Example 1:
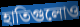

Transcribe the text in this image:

হাতিগুলোও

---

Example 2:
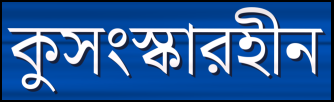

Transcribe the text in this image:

কুসংস্কারহীন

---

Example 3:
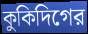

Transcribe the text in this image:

কুকিদিগের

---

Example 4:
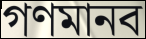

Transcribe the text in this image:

গণমানব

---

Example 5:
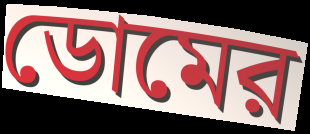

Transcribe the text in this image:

ডোমের